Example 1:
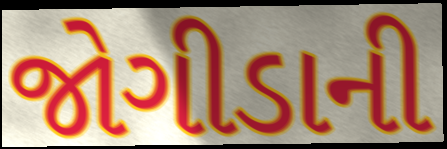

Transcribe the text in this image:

જોગીડાની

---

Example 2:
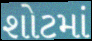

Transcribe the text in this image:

શોટમાં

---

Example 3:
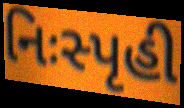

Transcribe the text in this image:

નિઃસ્પૃહી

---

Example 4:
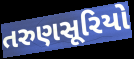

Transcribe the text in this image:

તરુણસૂરિયો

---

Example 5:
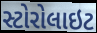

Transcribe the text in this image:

સ્ટોરોલાઇટ